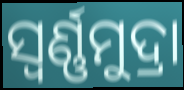
ସ୍ୱର୍ଣ୍ଣମୁଦ୍ରା